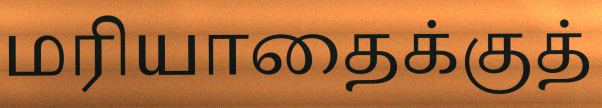
மரியாதைக்குத்